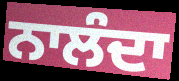
ਨਾਲੰਦਾ